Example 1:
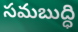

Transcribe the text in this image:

సమబుద్ధి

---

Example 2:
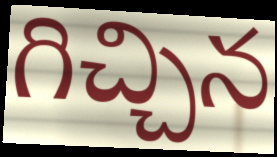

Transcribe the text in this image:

గిచ్చిన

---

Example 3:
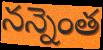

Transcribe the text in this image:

నన్నెంత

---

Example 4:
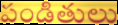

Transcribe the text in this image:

పండితులు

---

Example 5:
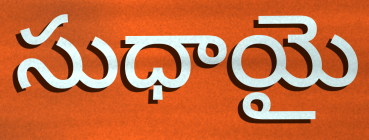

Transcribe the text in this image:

సుధాయై